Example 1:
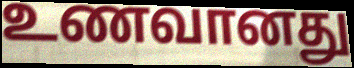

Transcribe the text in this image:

உணவானது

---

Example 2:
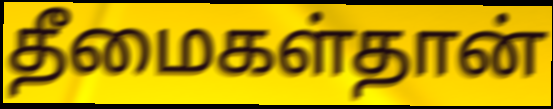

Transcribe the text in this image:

தீமைகள்தான்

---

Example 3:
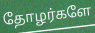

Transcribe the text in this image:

தோழர்களே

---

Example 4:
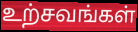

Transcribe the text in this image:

உற்சவங்கள்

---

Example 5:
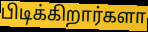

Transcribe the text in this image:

பிடிக்கிறார்களா